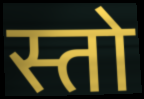
स्तो